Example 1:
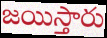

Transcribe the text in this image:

జయిస్తారు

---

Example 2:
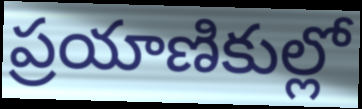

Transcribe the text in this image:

ప్రయాణికుల్లో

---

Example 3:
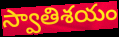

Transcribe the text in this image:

స్వాతిశయం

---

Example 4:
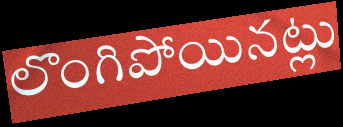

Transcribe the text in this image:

లొంగిపోయినట్లు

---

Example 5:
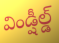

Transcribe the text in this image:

విండ్షీల్డ్